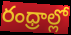
రంధ్రాల్లో